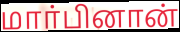
மார்பினான்